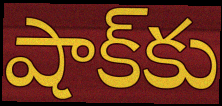
షాక్‌కు